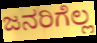
ಜನರಿಗೆಲ್ಲ